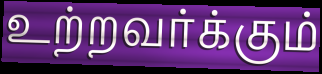
உற்றவர்க்கும்